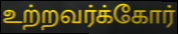
உற்றவர்க்கோர்